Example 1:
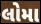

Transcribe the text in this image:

લોમા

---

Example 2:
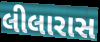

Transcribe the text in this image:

લીલારાસ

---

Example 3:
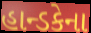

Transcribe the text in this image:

હાન્ડકેના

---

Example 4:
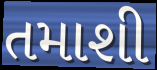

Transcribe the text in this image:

તમાશી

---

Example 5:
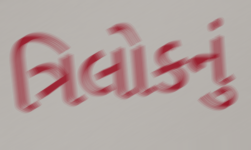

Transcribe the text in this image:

ત્રિલોકનું